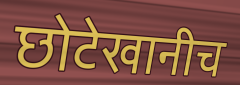
छोटेखानीच